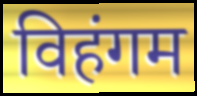
विहंगम